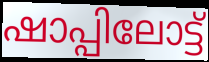
ഷാപ്പിലോട്ട്